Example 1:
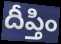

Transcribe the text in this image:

దీప్తిం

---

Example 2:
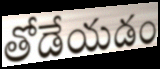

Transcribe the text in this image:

తోడేయడం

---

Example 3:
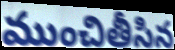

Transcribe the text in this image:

ముంచితీసిన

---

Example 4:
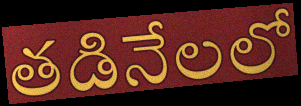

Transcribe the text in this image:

తడినేలలో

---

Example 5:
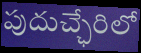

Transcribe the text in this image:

పుదుచ్ఛేరిలో